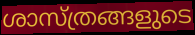
ശാസ്ത്രങ്ങളുടെ